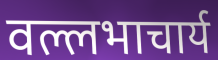
वल्लभाचार्य